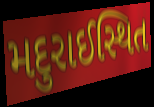
મદુરાઈસ્થિત